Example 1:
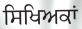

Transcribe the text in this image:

ਸਿਖਿਅਕਾਂ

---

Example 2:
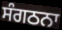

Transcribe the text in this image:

ਸੰਗਠਨਾ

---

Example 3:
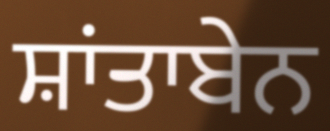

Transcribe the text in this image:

ਸ਼ਾਂਤਾਬੇਨ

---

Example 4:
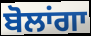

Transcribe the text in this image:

ਬੋਲਾਂਗਾ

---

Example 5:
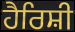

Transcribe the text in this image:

ਹੈਰਿਸ਼ੀ